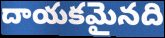
దాయకమైనది